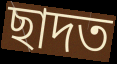
ছাদত